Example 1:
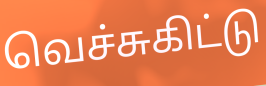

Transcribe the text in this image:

வெச்சுகிட்டு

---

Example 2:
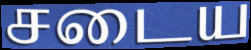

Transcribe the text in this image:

சடைய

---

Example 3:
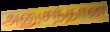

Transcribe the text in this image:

அனுசந்தான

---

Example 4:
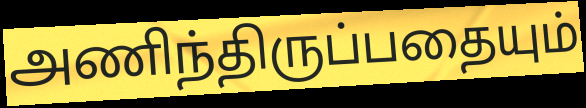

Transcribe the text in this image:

அணிந்திருப்பதையும்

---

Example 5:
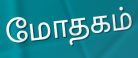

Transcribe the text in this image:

மோதகம்